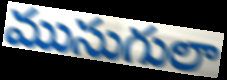
ముసుగులా